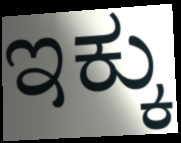
ಇಕ್ಕು